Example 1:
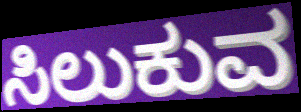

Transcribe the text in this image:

ಸಿಲುಕುವ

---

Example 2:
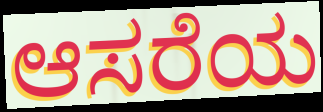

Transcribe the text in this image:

ಆಸರೆಯ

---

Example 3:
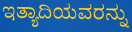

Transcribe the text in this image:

ಇತ್ಯಾದಿಯವರನ್ನು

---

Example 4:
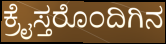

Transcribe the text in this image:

ಕ್ರೈಸ್ತರೊಂದಿಗಿನ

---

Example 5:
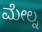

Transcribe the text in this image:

ಮೇಲ್ನ